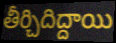
తీర్చిదిద్దాయి